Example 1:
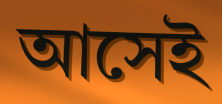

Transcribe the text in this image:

আসেই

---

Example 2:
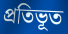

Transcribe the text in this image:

প্রতিভূত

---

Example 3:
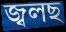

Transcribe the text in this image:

জ্বলছ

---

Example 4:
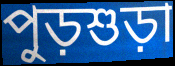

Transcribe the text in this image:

পুড়শুড়া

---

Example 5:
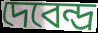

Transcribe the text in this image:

দেবেন্দ্র